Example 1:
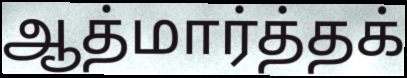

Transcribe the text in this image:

ஆத்மார்த்தக்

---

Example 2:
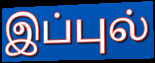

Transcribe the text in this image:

இப்புல்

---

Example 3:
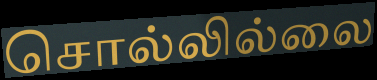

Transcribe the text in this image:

சொல்லில்லை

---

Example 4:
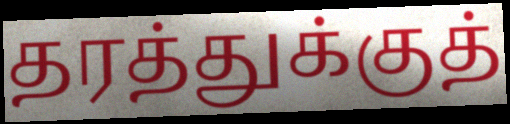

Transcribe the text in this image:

தரத்துக்குத்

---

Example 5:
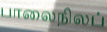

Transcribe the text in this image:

பாலைநிலப்